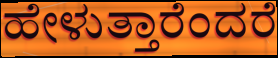
ಹೇಳುತ್ತಾರೆಂದರೆ